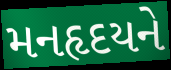
મનહૃદયને